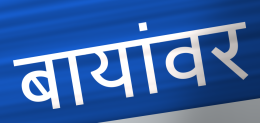
बायांवर